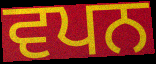
ਵਪਨ